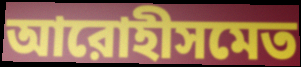
আরোহীসমেত